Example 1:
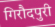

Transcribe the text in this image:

गिरौदपुरी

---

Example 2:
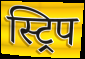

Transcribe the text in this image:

स्ट्रिप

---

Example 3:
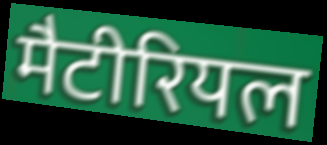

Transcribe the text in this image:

मैटीरियल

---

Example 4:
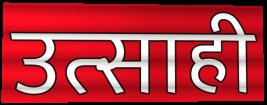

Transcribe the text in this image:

उत्साही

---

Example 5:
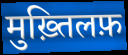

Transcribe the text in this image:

मुख़्तिलफ़